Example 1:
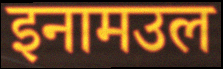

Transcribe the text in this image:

इनामउल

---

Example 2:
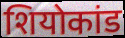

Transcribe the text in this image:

शियोकांड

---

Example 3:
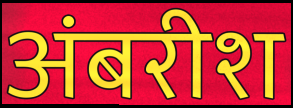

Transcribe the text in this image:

अंबरीश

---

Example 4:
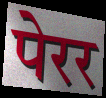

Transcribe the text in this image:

पेरर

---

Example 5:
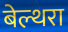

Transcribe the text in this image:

बेल्थरा